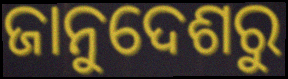
ଜାନୁଦେଶରୁ